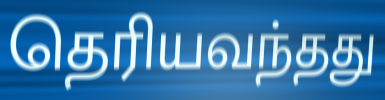
தெரியவந்தது